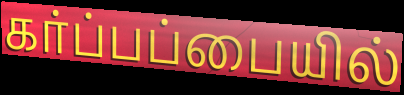
கர்ப்பப்பையில்